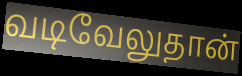
வடிவேலுதான்